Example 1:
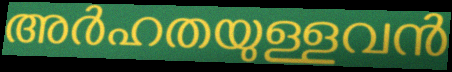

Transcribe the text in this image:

അർഹതയുള്ളവൻ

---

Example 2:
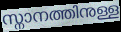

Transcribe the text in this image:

സ്നാനത്തിനുള്ള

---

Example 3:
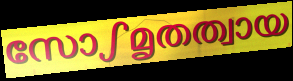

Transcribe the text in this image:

സോഽമൃതത്വായ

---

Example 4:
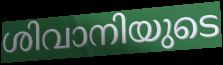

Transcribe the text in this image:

ശിവാനിയുടെ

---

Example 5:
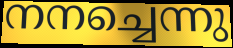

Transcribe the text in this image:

നനച്ചെന്നു